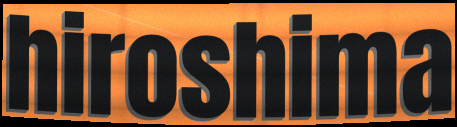
hiroshima